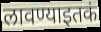
लावण्याइतकं